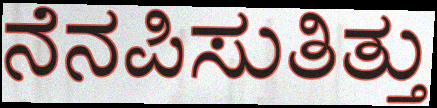
ನೆನಪಿಸುತಿತ್ತು